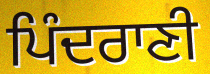
ਪਿੰਦਰਾਣੀ